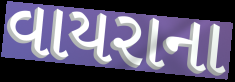
વાયરાના